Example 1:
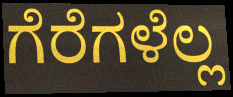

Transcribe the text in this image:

ಗೆರೆಗಳೆಲ್ಲ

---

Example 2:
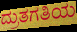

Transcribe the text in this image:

ದ್ರುತಗತಿಯ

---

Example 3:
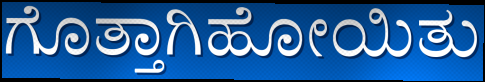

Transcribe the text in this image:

ಗೊತ್ತಾಗಿಹೋಯಿತು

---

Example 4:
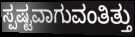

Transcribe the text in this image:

ಸ್ಪಷ್ಟವಾಗುವಂತಿತ್ತು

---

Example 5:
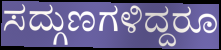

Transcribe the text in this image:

ಸದ್ಗುಣಗಳಿದ್ದರೂ